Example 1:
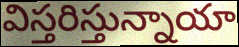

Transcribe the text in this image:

విస్తరిస్తున్నాయా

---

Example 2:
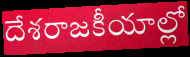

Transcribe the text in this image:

దేశరాజకీయాల్లో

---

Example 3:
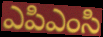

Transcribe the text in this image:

ఎపిఎంసి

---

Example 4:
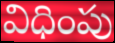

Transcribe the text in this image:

విధింపు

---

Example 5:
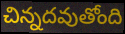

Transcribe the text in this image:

చిన్నదవుతోంది